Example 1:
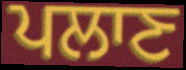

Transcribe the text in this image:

ਪਲਾਣ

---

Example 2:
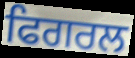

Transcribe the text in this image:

ਫਿਗਰਲ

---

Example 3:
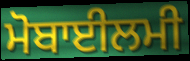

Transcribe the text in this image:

ਮੋਬਾਈਲਮੀ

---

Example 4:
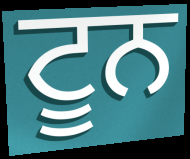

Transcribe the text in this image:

ਟੂਨ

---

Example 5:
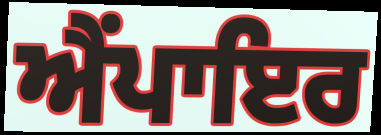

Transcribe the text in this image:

ਐੰਪਾਇਰ